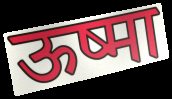
ऊष्मा